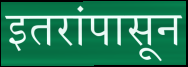
इतरांपासून